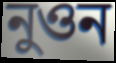
নুওন